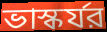
ভাস্কর্যর